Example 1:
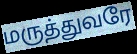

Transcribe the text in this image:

மருத்துவரே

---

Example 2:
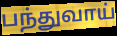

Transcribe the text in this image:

பந்துவாய்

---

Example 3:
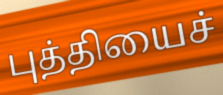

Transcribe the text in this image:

புத்தியைச்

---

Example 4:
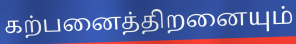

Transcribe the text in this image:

கற்பனைத்திறனையும்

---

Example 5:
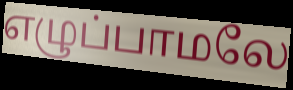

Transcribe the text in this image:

எழுப்பாமலே